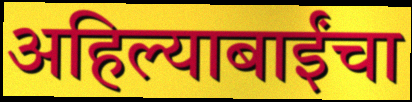
अहिल्याबाईंचा